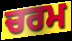
ਚਰਮ